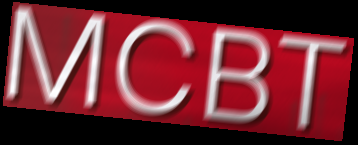
MCBT